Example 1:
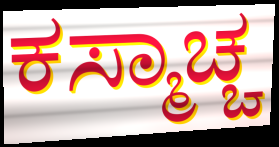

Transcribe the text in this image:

ಕಸ್ಮಾಚ್ಚ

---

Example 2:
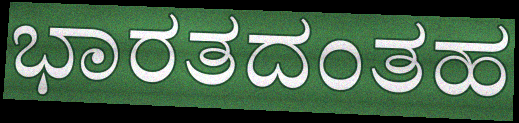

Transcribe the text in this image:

ಭಾರತದಂತಹ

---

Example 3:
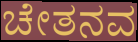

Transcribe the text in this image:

ಚೇತನವ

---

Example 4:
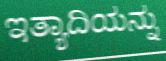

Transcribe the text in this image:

ಇತ್ಯಾದಿಯನ್ನು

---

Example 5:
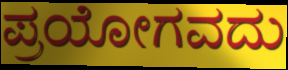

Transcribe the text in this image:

ಪ್ರಯೋಗವದು